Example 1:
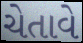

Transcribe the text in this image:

ચેતાવે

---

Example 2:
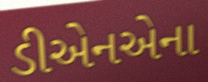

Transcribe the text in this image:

ડીએનએના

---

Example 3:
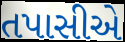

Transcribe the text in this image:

તપાસીએ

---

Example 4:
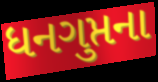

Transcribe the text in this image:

ધનગુપ્તના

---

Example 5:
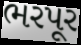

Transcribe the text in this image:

ભરપૂર